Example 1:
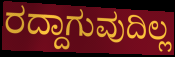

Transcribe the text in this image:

ರದ್ದಾಗುವುದಿಲ್ಲ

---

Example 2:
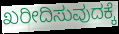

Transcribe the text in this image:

ಖರೀದಿಸುವುದಕ್ಕೆ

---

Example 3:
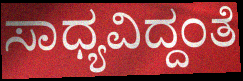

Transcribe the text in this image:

ಸಾಧ್ಯವಿದ್ದಂತೆ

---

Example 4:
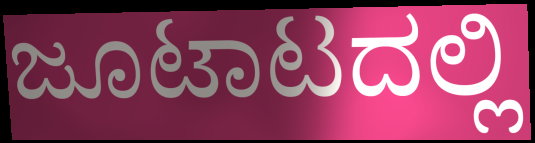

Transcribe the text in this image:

ಜೂಟಾಟದಲ್ಲಿ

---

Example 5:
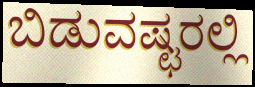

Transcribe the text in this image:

ಬಿಡುವಷ್ಟರಲ್ಲಿ